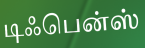
டிஃபென்ஸ்